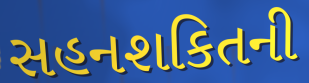
સહનશકિતની